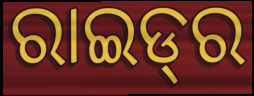
ରାଇଡ୍‌ର